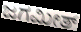
ಜಗಮೀತ್